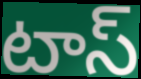
టాస్